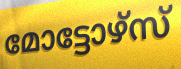
മോട്ടോഴ്സ്